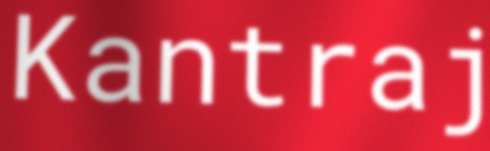
Kantraj